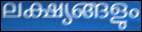
ലക്ഷ്യങ്ങളും